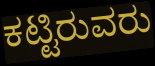
ಕಟ್ಟಿರುವರು